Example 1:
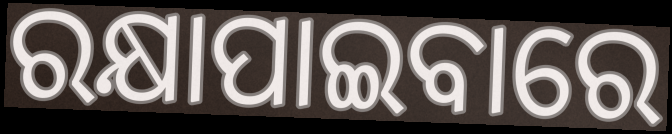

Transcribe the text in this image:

ରକ୍ଷାପାଇବାରେ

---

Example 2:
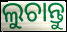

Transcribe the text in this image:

ଲୁଚାନ୍ତୁ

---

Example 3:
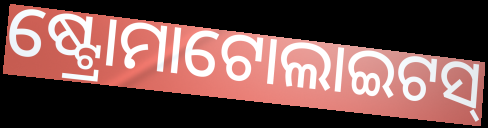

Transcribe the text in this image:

ଷ୍ଟ୍ରୋମାଟୋଲାଇଟସ୍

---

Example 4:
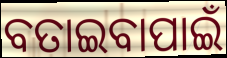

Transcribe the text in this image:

ବତାଇବାପାଇଁ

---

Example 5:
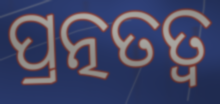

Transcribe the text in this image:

ପ୍ରତ୍ନତତ୍ୱ